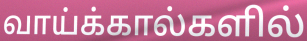
வாய்க்கால்களில்